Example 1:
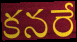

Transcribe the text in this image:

కనరే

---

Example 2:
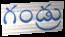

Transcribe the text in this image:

గండ్రు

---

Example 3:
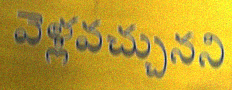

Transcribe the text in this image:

వెళ్లవచ్చునని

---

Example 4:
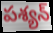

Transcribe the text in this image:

పశ్యన్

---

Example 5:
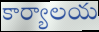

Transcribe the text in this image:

కార్యాలయ